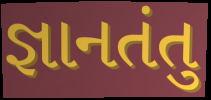
જ્ઞાનતંતુ